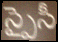
స్పైసీ